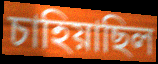
চাহিয়াছিল